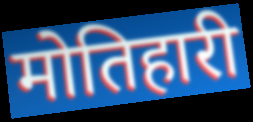
मोतिहारी